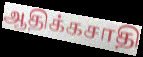
ஆதிக்கசாதி